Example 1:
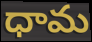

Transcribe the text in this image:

ధామ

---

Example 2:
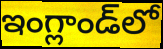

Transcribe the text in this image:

ఇంగ్లాండ్‌లో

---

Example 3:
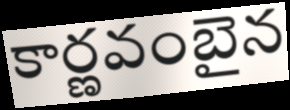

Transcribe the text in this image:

కార్ణవంబైన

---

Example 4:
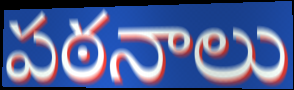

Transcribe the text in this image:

పఠనాలు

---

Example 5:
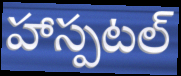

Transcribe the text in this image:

హాస్పటల్